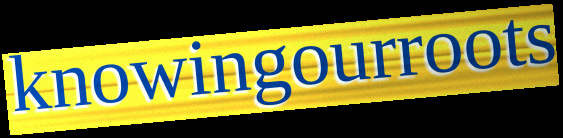
knowingourroots